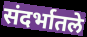
संदर्भातले